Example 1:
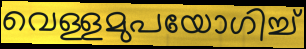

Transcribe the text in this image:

വെള്ളമുപയോഗിച്ച്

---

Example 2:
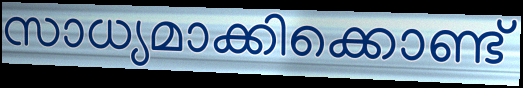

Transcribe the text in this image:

സാധ്യമാക്കിക്കൊണ്ട്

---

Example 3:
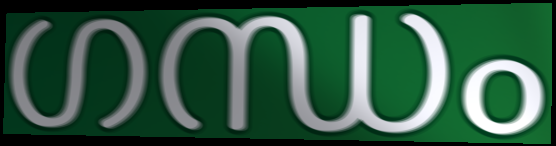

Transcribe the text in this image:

ഗന്ധം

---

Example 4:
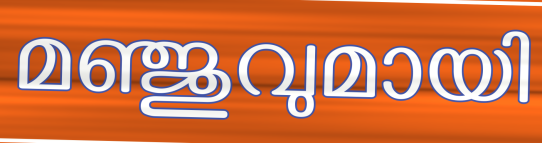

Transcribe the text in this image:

മഞ്ജുവുമായി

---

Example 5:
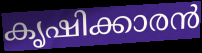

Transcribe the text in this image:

കൃഷിക്കാരൻ